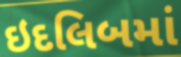
ઇદલિબમાં